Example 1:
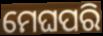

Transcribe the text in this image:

ମେଘପରି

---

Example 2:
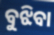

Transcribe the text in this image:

ବୁଝିବା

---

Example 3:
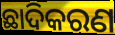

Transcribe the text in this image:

ଛାଦିକରଣ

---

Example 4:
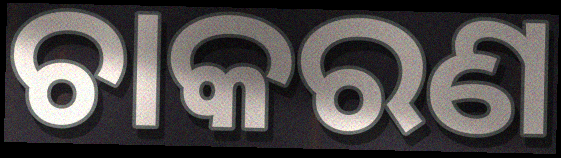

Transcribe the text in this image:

ଚାକରଣ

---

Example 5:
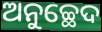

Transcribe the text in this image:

ଅନୁଚ୍ଛେଦ